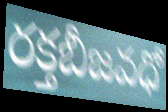
రక్తబీజవధో